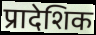
प्रादेशिक